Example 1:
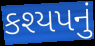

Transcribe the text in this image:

કશ્યપનું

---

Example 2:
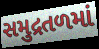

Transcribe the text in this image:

સમુદ્રતળમાં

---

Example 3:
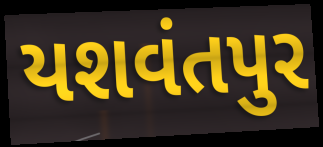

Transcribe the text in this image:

યશવંતપુર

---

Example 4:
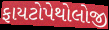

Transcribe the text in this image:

ફાયટોપેથોલોજી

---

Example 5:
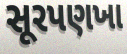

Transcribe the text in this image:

સૂરપણખા